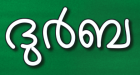
ദുർബ